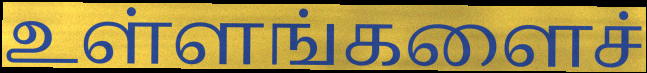
உள்ளங்களைச்